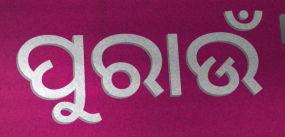
ପୁରାଉଁ